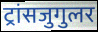
ट्रांसजुगुलर